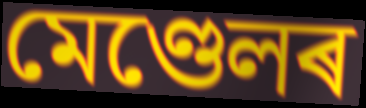
মেণ্ডেলৰ